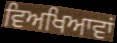
ਵਿਅਖਿਆਵਾਂ